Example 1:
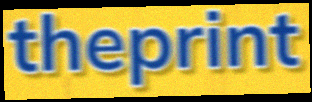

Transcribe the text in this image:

theprint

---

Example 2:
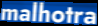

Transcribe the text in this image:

malhotra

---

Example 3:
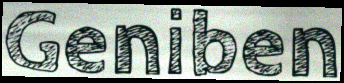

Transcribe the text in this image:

Geniben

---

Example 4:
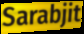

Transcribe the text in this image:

Sarabjit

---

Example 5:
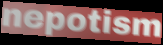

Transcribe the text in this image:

nepotism